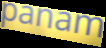
panam